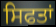
ਸਿਫਤਾਂ